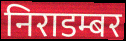
निराडम्बर